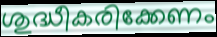
ശുദ്ധീകരിക്കേണം